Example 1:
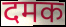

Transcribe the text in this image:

दमक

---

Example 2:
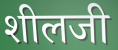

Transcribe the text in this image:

शीलजी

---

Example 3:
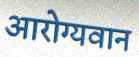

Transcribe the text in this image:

आरोग्यवान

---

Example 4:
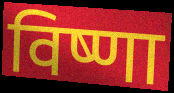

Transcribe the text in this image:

विष्णा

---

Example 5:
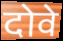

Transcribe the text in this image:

दोवे